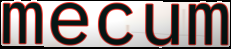
mecum